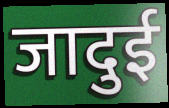
जादुई